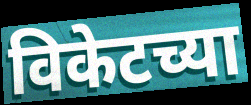
विकेटच्या